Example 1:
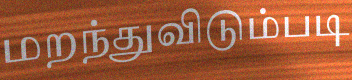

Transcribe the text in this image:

மறந்துவிடும்படி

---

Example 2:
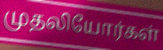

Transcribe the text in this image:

முதலியோர்கள்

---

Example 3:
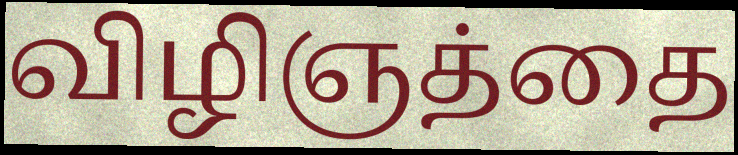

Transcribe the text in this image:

விழிஞத்தை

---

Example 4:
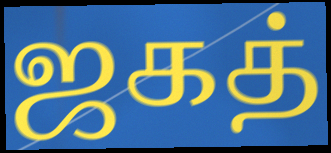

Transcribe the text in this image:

ஜகத்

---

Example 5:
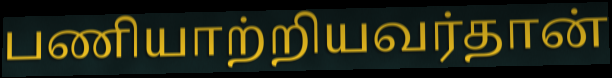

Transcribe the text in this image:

பணியாற்றியவர்தான்